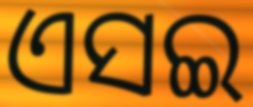
ଏସଇ